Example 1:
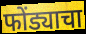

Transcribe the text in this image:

फोंड्याचा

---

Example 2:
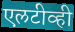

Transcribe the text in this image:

एलटीव्ही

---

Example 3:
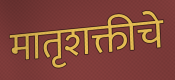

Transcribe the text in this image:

मातृशक्तीचे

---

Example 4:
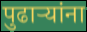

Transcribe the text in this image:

पुढाऱ्यांना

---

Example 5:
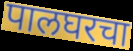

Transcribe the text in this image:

पालघरचा